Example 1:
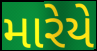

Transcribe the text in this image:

મારેયે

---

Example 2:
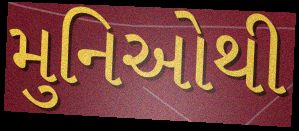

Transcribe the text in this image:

મુનિઓથી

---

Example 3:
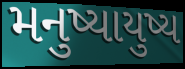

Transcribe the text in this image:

મનુષ્યાયુષ્ય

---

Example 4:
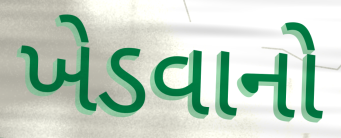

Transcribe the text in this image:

ખેડવાનો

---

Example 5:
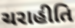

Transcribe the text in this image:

ચરાહીતિ